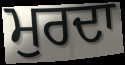
ਮੁਰਦਾ